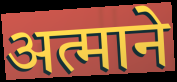
अत्माने